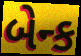
બેન્ક